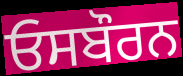
ਓਸਬੌਰਨ